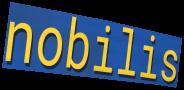
nobilis